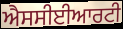
ਐਸਸੀਈਆਰਟੀ